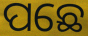
ପଛେ